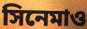
সিনেমাও